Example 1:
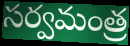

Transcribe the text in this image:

సర్వమంత్ర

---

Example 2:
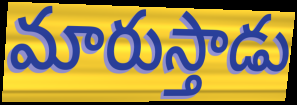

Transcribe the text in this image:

మారుస్తాడు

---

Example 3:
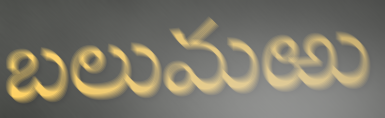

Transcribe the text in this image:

బలుమఱు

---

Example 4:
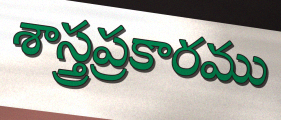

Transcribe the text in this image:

శాస్త్రప్రకారము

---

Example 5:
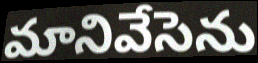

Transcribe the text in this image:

మానివేసెను